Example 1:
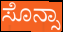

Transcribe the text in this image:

ಸೊನ್ಸಾ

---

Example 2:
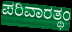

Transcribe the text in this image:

ಪರಿವಾರತ್ಥಂ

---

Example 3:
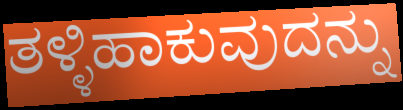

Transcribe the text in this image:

ತಳ್ಳಿಹಾಕುವುದನ್ನು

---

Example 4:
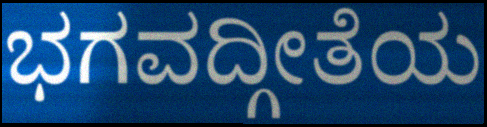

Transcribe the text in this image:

ಭಗವದ್ಗೀತೆಯ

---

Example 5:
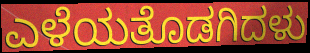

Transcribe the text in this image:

ಎಳೆಯತೊಡಗಿದಳು